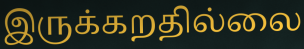
இருக்கறதில்லை